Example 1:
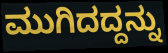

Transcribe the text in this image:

ಮುಗಿದದ್ದನ್ನು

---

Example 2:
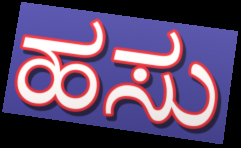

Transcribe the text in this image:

ಹಸು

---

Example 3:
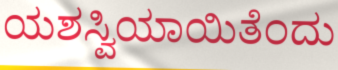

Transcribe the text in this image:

ಯಶಸ್ವಿಯಾಯಿತೆಂದು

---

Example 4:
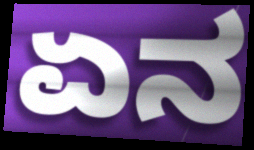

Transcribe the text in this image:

ಏನ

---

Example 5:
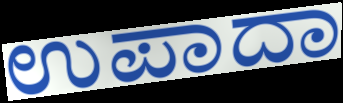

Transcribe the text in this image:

ಉಪಾದಾ